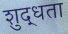
शुद्धता